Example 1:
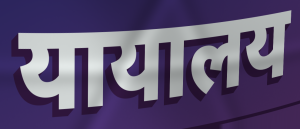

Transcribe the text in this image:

यायालय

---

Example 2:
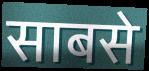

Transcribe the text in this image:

साबसे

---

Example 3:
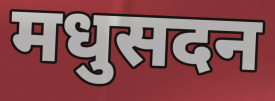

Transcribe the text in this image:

मधुसदन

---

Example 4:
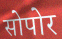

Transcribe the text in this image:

सोपोर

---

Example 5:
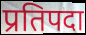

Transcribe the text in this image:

प्रतिपदा